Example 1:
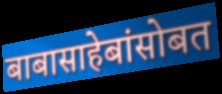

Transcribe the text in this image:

बाबासाहेबांसोबत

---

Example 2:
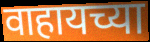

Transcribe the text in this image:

वाहायच्या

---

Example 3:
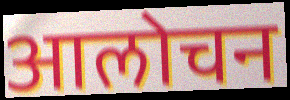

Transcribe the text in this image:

आलोचन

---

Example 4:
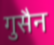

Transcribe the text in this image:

गुसैन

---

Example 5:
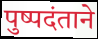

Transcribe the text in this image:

पुष्पदंताने